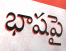
భాషపై